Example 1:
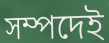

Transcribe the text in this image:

সম্পদেই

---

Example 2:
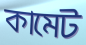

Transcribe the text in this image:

কামেট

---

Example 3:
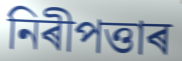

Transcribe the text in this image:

নিৰীপত্তাৰ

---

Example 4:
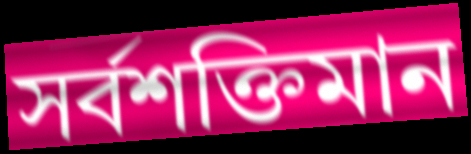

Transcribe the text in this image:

সৰ্বশক্তিমান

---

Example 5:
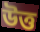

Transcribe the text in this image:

উত্ত